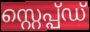
സ്റ്റെപ്പ്ഡ്